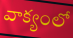
వాక్యంలో